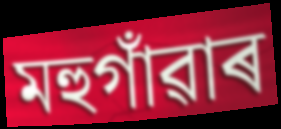
মহুগাঁৱাৰ